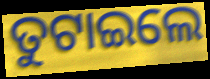
ତୁଟାଇଲେ